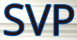
SVP